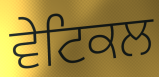
ਵੇਟਿਕਲ